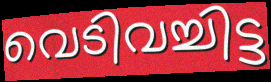
വെടിവച്ചിട്ട